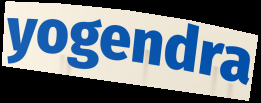
yogendra